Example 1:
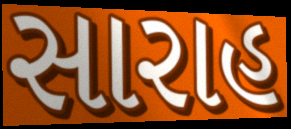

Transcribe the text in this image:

સારાહ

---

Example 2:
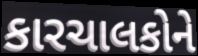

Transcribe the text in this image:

કારચાલકોને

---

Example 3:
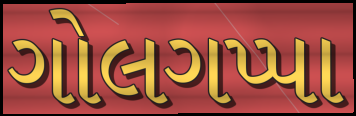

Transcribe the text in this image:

ગોલગપ્પા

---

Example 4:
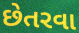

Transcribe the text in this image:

છેતરવા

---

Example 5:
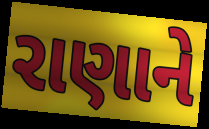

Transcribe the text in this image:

રાણાને